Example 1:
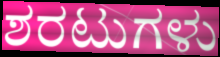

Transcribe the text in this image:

ಶರಟುಗಳು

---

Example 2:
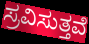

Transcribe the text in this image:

ಸ್ರವಿಸುತ್ತವೆ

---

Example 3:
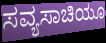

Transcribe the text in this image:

ಸವ್ಯಸಾಚಿಯೂ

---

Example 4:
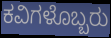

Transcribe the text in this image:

ಕವಿಗಳೊಬ್ಬರು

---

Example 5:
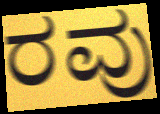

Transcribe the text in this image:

ರವು